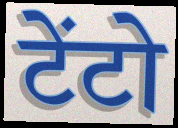
टेंटो